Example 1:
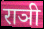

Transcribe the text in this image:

राञी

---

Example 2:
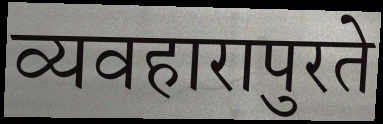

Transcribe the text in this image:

व्यवहारापुरते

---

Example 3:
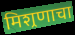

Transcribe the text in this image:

मिश्रणाचा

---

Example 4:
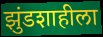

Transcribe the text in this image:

झुंडशाहीला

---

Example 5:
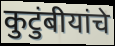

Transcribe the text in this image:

कुटुंबीयांचे